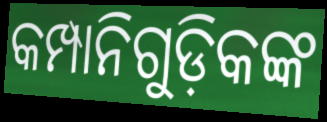
କମ୍ପାନିଗୁଡ଼ିକଙ୍କ